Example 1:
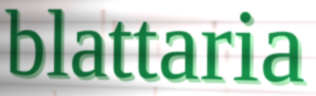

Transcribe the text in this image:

blattaria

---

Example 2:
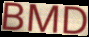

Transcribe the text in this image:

BMD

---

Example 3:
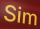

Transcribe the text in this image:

Sim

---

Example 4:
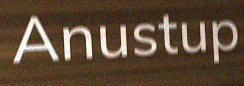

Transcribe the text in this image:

Anustup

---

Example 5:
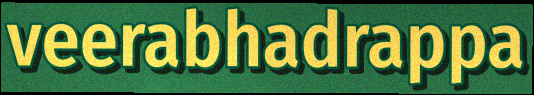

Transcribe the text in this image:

veerabhadrappa